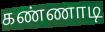
கண்ணாடி